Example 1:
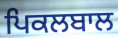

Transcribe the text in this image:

ਪਿਕਲਬਾਲ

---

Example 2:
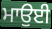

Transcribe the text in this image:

ਮਾਉਈ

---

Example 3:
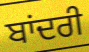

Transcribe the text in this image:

ਬਾਂਦਰੀ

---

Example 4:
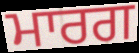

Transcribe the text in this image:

ਮਾਰਗ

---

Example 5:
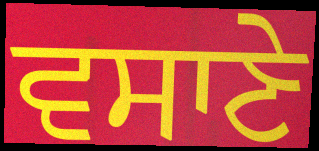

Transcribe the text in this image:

ਵਸਾਣੇ